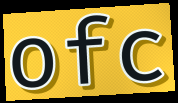
ofc